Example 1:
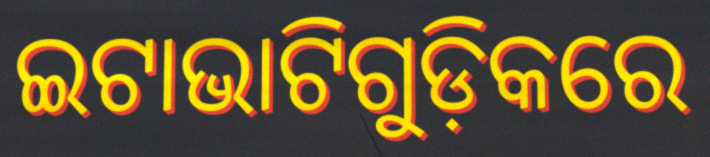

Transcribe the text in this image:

ଇଟାଭାଟିଗୁଡ଼ିକରେ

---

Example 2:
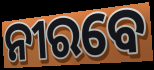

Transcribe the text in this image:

ନୀରବେ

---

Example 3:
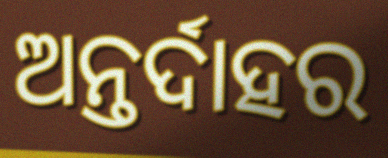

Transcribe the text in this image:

ଅନ୍ତର୍ଦାହର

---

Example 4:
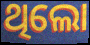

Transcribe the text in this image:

ଥିଲୋ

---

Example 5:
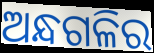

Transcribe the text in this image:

ଅନ୍ଧଗଳିର